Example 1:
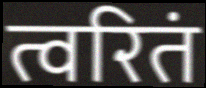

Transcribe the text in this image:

त्वरितं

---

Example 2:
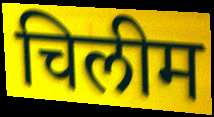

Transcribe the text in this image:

चिलीम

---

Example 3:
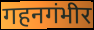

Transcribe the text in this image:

गहनगंभीर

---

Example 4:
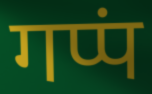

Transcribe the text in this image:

गप्पं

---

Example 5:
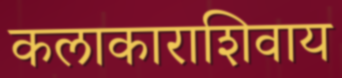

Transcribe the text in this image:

कलाकाराशिवाय